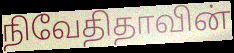
நிவேதிதாவின்